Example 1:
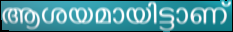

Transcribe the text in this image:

ആശയമായിട്ടാണ്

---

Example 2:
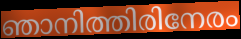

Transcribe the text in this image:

ഞാനിത്തിരിനേരം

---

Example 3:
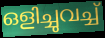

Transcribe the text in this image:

ഒളിച്ചുവച്ച്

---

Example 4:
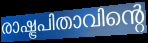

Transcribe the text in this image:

രാഷ്ട്രപിതാവിന്റെ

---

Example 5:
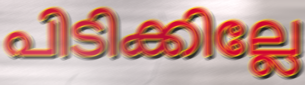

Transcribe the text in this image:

പിടിക്കില്ലേ